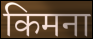
किमना